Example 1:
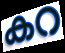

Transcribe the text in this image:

കറ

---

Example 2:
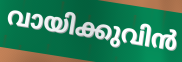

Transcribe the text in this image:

വായിക്കുവിൻ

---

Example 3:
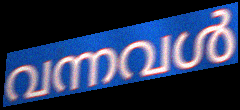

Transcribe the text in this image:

വന്നവൾ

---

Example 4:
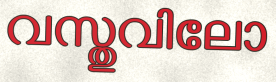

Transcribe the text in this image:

വസ്തുവിലോ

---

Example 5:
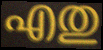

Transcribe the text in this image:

എതു